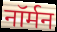
नॉर्मन